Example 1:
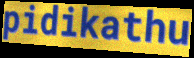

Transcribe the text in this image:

pidikathu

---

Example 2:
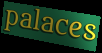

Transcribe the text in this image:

palaces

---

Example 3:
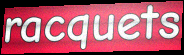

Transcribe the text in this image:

racquets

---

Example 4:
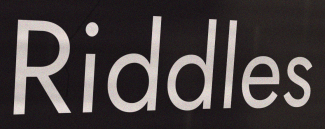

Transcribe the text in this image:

Riddles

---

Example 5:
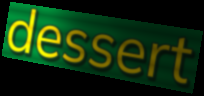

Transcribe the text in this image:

dessert